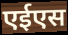
एईएस